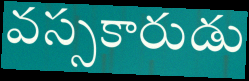
వస్సకారుడు